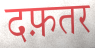
दफ़तर